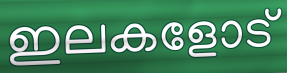
ഇലകളോട്